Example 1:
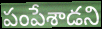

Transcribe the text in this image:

పంపేశాడని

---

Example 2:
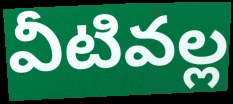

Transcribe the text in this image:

వీటివల్ల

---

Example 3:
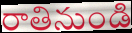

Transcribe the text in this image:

రాతినుండి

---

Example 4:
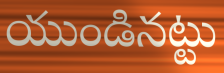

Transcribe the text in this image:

యుండినట్టు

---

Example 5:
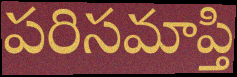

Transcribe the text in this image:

పరిసమాప్తి